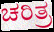
ಚರಿತ್ರ